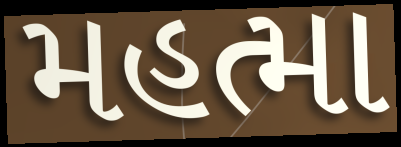
મહત્મા